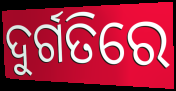
ଦୁର୍ଗତିରେ